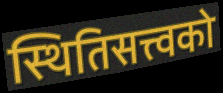
स्थितिसत्त्वको